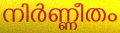
നിർണ്ണീതം